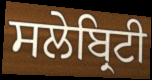
ਸਲੇਬ੍ਰਿਟੀ